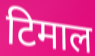
टिमाल